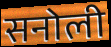
सनोली